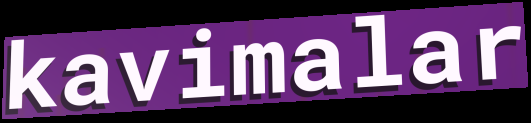
kavimalar